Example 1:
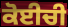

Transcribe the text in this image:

ਕੋਈਚੀ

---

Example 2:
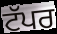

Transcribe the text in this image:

ਟੱਪਰ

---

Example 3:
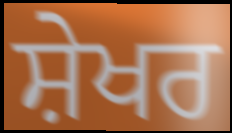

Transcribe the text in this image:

ਸ਼ੇਖਰ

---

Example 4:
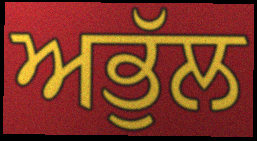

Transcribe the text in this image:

ਅਭੁੱਲ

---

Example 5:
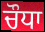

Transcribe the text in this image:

ਚੌਧਾ